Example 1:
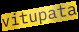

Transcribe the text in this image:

vitupata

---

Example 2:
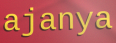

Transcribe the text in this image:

ajanya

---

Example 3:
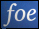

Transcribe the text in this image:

foe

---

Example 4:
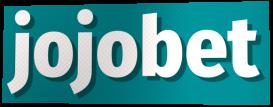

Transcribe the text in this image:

jojobet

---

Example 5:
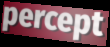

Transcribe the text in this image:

percept